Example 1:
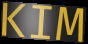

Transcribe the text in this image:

KIM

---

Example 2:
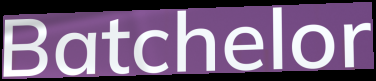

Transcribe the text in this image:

Batchelor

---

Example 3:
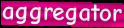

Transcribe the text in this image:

aggregator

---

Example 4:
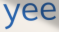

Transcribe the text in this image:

yee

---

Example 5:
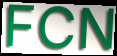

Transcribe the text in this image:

FCN